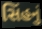
સિંહનું